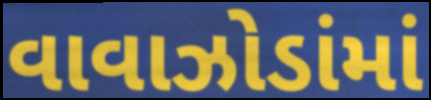
વાવાઝોડાંમાં